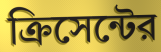
ক্রিসেন্টের